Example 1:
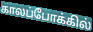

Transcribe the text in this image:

காலப்போக்கில்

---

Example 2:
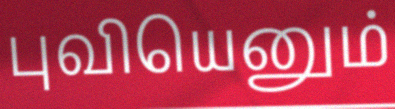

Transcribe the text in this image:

புவியெனும்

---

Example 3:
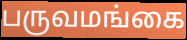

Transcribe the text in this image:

பருவமங்கை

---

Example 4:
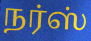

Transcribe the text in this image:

நர்ஸ்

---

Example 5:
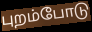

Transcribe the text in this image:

புறம்போடு